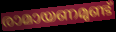
രാമായണമുണ്ട്